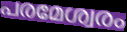
പരമേശ്വരം